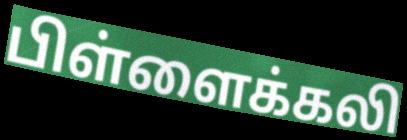
பிள்ளைக்கலி